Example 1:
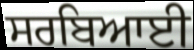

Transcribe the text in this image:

ਸਰਬਿਆਈ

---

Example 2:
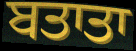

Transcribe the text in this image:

ਬਤਾਤਾ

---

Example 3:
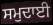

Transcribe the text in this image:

ਸਮੁਦਾਈ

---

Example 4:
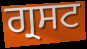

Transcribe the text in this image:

ਗ੍ਰਸਟ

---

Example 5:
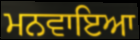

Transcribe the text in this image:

ਮਨਵਾਇਆ